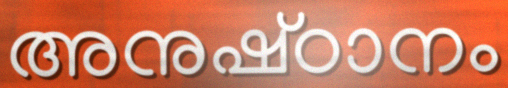
അനുഷ്‌ഠാനം